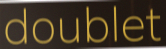
doublet